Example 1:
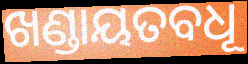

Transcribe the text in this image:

ଖଣ୍ଡାୟତବଧୂ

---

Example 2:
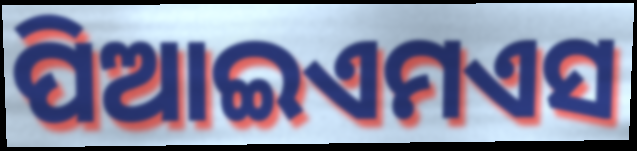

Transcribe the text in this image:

ପିଆଇଏମଏସ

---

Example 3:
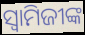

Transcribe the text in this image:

ସ୍ବାମିଜୀଙ୍କ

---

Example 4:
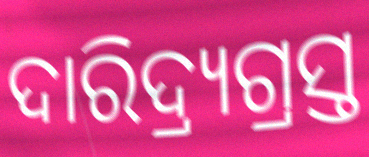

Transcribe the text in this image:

ଦାରିଦ୍ର୍ୟଗ୍ରସ୍ତ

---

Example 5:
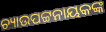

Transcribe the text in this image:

ଚ୍ୟାଉପଟ୍ଟନାୟକଙ୍କ